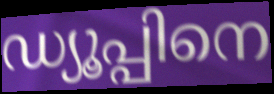
ഡ്യൂപ്പിനെ